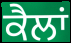
ਕੈਲਾਂ